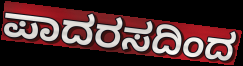
ಪಾದರಸದಿಂದ